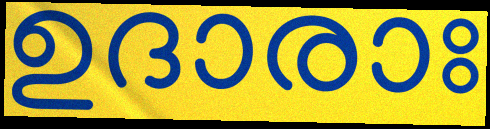
ഉദാരാഃ